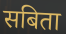
सबिता